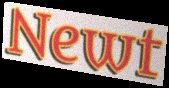
Newt